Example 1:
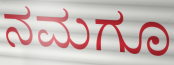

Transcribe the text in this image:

ನಮಗೂ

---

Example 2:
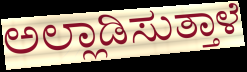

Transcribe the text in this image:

ಅಲ್ಲಾಡಿಸುತ್ತಾಳೆ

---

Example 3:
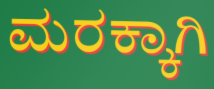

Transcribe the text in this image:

ಮರಕ್ಕಾಗಿ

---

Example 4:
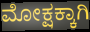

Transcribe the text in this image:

ಮೋಕ್ಷಕ್ಕಾಗಿ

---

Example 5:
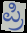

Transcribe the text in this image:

ಪ್ರಿ